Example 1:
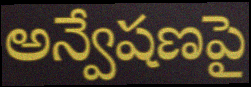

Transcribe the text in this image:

అన్వేషణపై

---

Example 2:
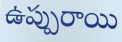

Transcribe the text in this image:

ఉప్పురాయి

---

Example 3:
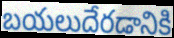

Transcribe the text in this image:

బయలుదేరడానికి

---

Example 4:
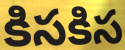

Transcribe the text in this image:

కిసకిస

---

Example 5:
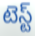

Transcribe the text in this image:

టెస్ట్